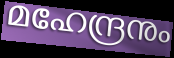
മഹേന്ദ്രനും